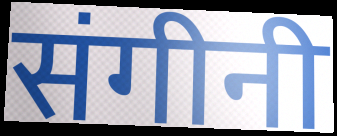
संगीनी